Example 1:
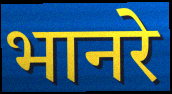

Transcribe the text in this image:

भानरे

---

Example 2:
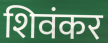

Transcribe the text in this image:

शिवंकर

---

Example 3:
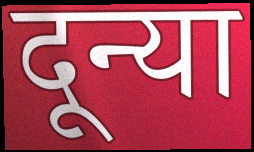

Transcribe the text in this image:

दून्या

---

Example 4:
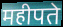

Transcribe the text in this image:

महीपते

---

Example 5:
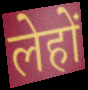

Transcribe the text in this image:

लेहों